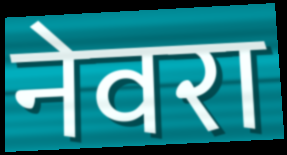
नेवरा